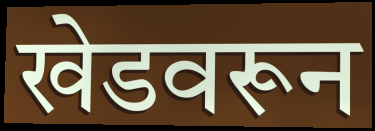
खेडवरून